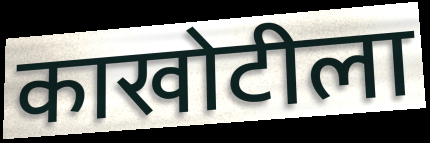
काखोटीला